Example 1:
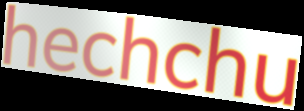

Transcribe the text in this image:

hechchu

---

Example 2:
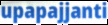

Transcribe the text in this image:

upapajjanti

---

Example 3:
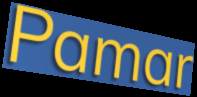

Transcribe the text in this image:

Pamar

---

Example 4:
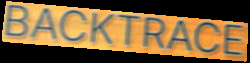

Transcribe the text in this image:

BACKTRACE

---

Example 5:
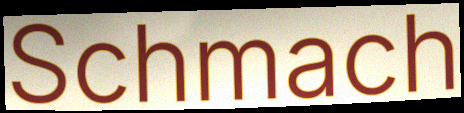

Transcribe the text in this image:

Schmach